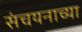
संचयनाच्या